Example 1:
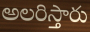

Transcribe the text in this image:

అలరిస్తారు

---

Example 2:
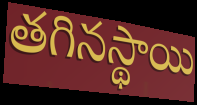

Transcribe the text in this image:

తగినస్థాయి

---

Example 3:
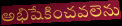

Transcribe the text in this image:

అభిషేకించవలెను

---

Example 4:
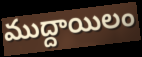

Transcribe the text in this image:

ముద్దాయిలం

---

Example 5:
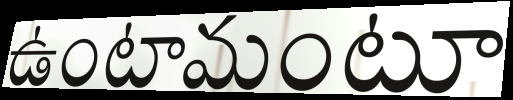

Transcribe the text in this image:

ఉంటామంటూ